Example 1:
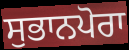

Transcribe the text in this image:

ਸੁਭਾਨਪੋਰਾ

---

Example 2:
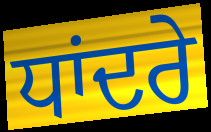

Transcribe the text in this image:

ਧਾਂਦਰੇ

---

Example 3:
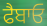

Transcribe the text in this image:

ਫੈਬਾਓ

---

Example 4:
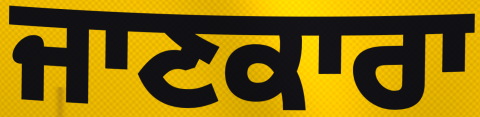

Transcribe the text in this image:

ਜਾਣਕਾਰਾ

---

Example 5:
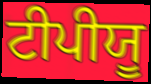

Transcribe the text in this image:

ਟੀਪੀਯੂ